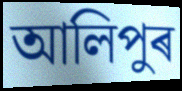
আলিপুৰ